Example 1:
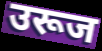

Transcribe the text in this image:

उरूज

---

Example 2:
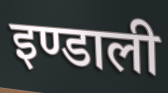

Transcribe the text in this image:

इण्डाली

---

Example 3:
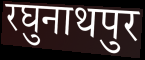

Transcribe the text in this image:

रघुनाथपुर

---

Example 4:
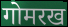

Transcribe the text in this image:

गोमरख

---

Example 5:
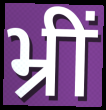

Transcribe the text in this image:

भ्रीं